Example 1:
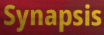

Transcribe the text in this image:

Synapsis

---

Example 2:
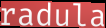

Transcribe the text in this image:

radula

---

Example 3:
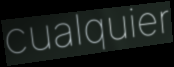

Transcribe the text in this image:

cualquier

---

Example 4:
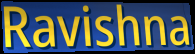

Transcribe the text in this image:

Ravishna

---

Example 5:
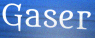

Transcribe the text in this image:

Gaser